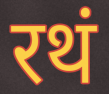
रथं